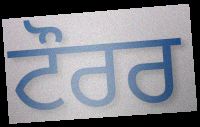
ਟੌਰਰ